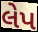
લેપ